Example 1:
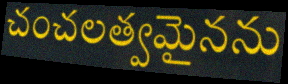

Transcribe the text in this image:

చంచలత్వమైనను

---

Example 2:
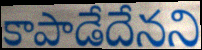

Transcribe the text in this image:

కాపాడేదేనని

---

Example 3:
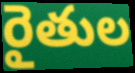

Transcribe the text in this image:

రైతుల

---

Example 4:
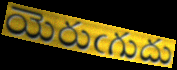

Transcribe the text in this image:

యెరుఁగుదు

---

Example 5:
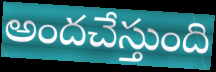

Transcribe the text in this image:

అందచేస్తుంది